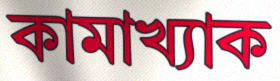
কামাখ্যাক